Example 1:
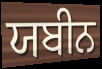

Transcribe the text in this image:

ਯਬੀਨ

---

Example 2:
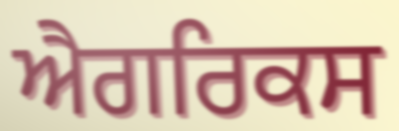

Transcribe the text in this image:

ਐਗਰਿਕਸ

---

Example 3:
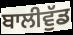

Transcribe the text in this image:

ਬਾਲੀਵੁੱਡ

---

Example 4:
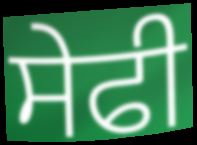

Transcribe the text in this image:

ਸੇਫੀ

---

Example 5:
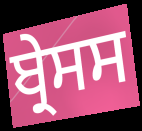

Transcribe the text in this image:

ਬ੍ਰੇਸਸ